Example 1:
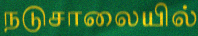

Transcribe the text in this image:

நடுசாலையில்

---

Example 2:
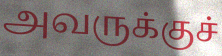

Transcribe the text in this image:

அவருக்குச்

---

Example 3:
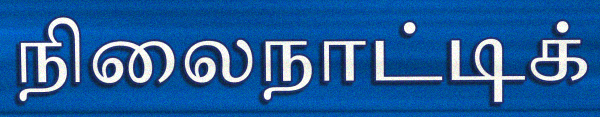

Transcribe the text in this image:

நிலைநாட்டிக்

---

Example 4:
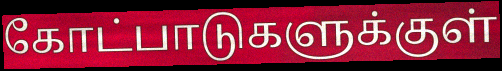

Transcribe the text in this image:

கோட்பாடுகளுக்குள்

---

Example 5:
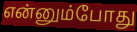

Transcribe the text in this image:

என்னும்போது